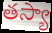
తస్యా